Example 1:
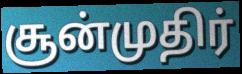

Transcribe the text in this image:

சூன்முதிர்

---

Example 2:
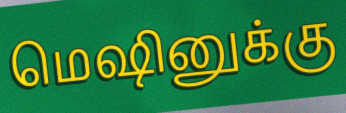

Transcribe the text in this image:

மெஷினுக்கு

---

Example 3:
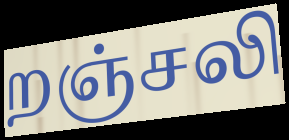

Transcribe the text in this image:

றஞ்சலி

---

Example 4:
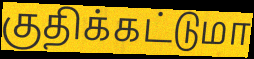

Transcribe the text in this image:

குதிக்கட்டுமா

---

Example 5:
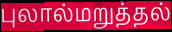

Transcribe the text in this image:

புலால்மறுத்தல்